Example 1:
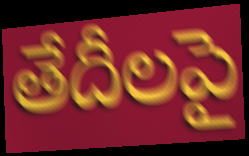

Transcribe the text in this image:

తేదీలపై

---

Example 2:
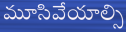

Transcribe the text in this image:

మూసివేయాల్సి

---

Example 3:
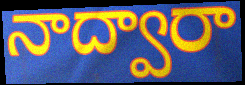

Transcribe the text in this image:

నాద్వారా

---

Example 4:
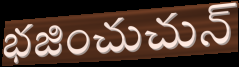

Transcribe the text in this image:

భజించుచున్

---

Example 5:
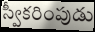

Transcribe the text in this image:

స్వీకరింపుడు